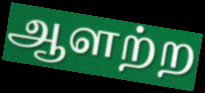
ஆளற்ற